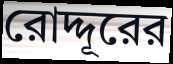
রোদ্দূরের